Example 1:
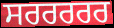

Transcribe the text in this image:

ਸਰਰਰਰਰ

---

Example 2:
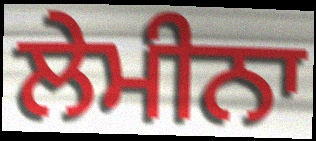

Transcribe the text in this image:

ਲੇਮੀਨਾ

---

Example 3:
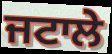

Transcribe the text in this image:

ਜਟਾਲੇ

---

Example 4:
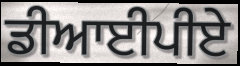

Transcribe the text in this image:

ਡੀਆਈਪੀਏ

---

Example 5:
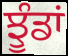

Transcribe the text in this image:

ਝੂੰਡਾਂ